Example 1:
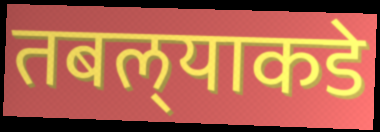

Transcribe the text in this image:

तबल्याकडे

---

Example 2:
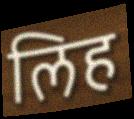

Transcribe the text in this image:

लिह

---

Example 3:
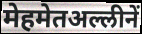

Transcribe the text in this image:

मेहमेतअल्लीनें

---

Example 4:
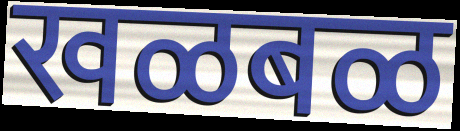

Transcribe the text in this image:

खळबळ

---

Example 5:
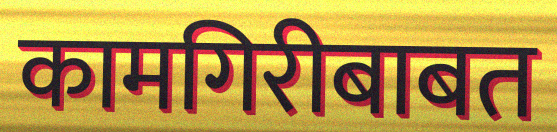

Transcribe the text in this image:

कामगिरीबाबत